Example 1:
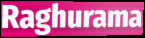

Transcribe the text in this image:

Raghurama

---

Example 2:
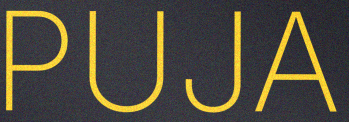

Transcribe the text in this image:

PUJA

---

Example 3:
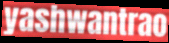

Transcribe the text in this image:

yashwantrao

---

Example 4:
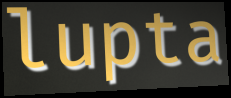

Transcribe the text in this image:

lupta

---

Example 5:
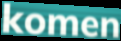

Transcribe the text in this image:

komen